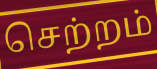
செற்றம்